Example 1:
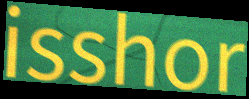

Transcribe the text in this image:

isshor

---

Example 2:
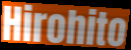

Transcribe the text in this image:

Hirohito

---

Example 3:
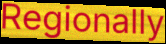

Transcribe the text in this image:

Regionally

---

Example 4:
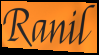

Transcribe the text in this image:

Ranil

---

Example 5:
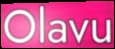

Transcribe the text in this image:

Olavu